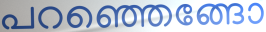
പറഞ്ഞെങ്ങോ